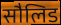
सौलिड